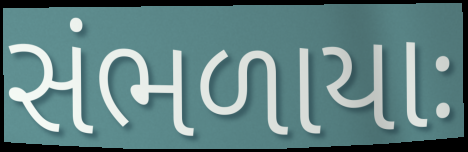
સંભળાયાઃ